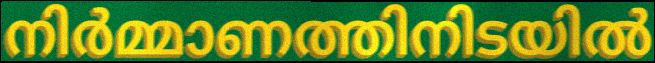
നിർമ്മാണത്തിനിടയിൽ